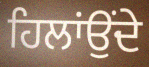
ਹਿਲਾਂਉਂਦੇ